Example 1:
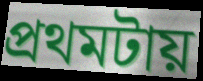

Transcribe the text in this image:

প্রথমটায়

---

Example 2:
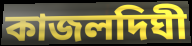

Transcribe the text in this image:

কাজলদিঘী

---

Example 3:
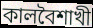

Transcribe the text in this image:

কালবৈশাখী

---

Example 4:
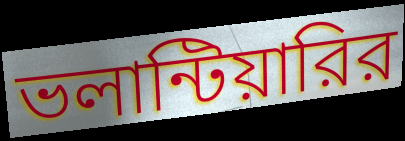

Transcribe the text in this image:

ভলান্টিয়ারির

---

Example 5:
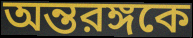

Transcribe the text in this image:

অন্তরঙ্গকে